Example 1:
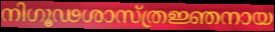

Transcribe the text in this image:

നിഗൂഢശാസ്ത്രജ്ഞനായ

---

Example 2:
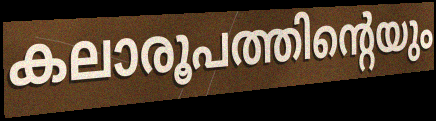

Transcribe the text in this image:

കലാരൂപത്തിന്റെയും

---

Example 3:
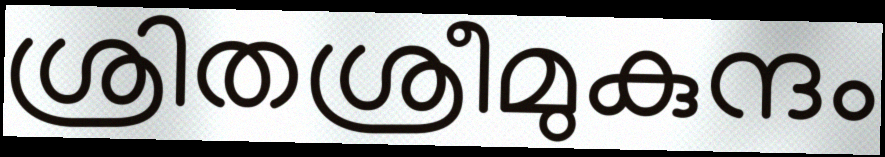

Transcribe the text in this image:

ശ്രിതശ്രീമുകുന്ദം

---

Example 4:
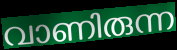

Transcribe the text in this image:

വാണിരുന്ന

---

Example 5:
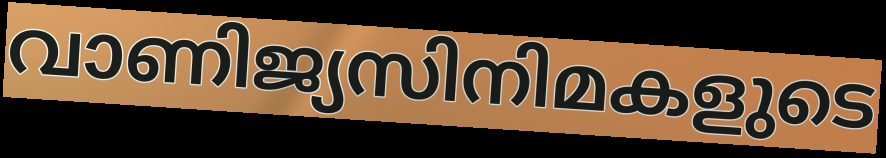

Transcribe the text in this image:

വാണിജ്യസിനിമകളുടെ